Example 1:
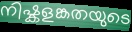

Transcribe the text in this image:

നിഷ്കളങ്കതയുടെ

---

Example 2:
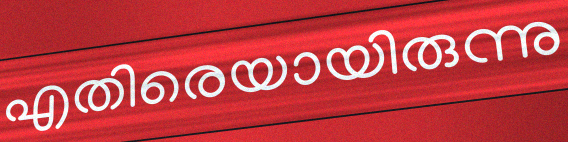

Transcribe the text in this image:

എതിരെയായിരുന്നു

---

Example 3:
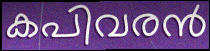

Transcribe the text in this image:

കപിവരൻ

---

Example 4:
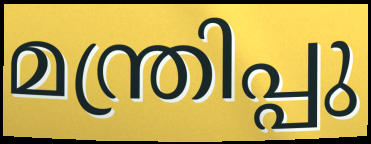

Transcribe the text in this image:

മന്ത്രിപ്പു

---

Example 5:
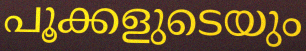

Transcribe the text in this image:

പൂക്കളുടെയും